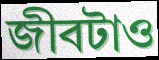
জীবটাও